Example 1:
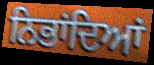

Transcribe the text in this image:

ਨਿਭਾਂਦਿਆਂ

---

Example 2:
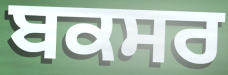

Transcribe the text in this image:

ਬਕਸਰ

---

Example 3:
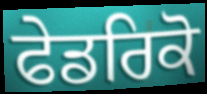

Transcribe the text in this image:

ਫੇਡਰਿਕੋ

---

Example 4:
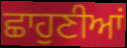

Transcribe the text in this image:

ਛਾਹੁਣੀਆਂ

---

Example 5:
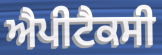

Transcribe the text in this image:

ਐਪੀਟੈਕਸੀ